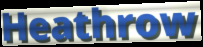
Heathrow